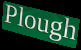
Plough